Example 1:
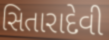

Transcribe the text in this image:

સિતારાદેવી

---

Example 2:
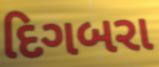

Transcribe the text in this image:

દિગબરા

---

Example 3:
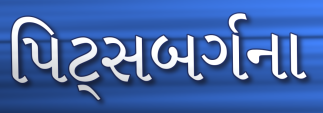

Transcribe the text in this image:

પિટ્સબર્ગના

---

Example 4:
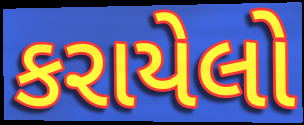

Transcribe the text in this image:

કરાયેલો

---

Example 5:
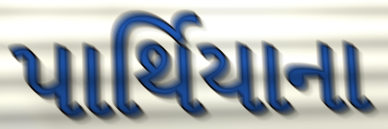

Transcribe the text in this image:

પાર્થિયાના